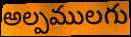
అల్పములగు